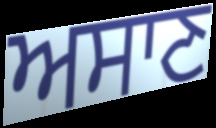
ਅਸਾਣ